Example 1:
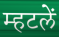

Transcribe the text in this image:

म्हटलें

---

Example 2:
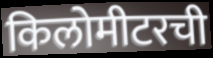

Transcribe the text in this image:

किलोमीटरची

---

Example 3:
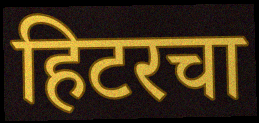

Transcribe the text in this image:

हिटरचा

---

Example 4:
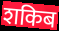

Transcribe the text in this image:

शकिब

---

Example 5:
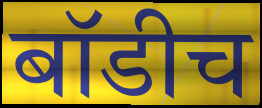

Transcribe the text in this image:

बॉडीच